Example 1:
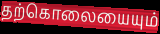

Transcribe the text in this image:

தற்கொலையையும்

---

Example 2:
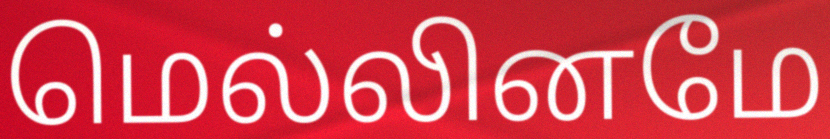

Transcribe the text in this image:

மெல்லினமே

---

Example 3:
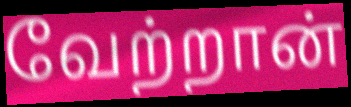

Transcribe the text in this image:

வேற்றான்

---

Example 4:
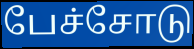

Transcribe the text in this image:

பேச்சோடு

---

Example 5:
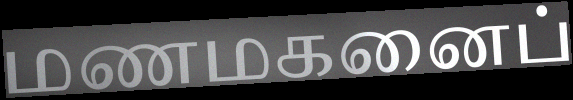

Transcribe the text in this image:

மணமகனைப்